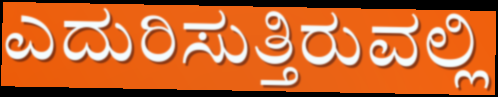
ಎದುರಿಸುತ್ತಿರುವಲ್ಲಿ